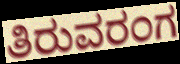
ತಿರುವರಂಗ